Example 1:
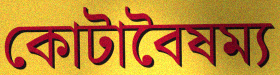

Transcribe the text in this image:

কোটাবৈষম্য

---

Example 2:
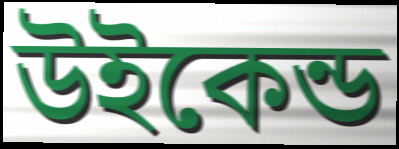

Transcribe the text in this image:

উইকেন্ড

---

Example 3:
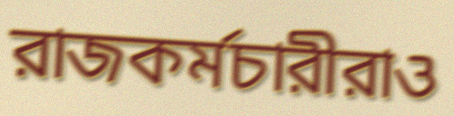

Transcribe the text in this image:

রাজকর্মচারীরাও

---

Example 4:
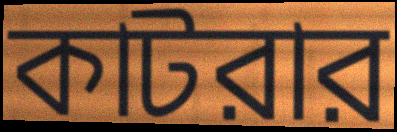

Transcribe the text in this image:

কাটরার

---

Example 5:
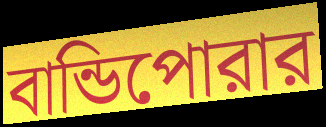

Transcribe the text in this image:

বান্ডিপোরার